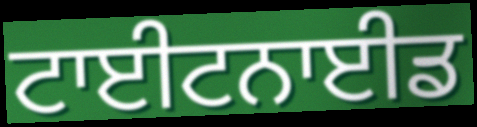
ਟਾਈਟਨਾਈਡ